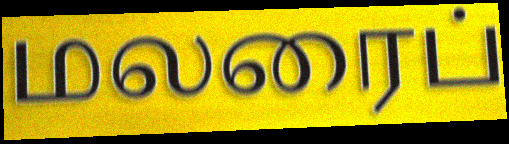
மலரைப்